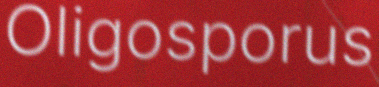
Oligosporus